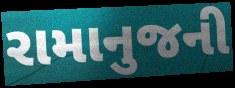
રામાનુજની